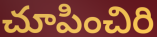
చూపించిరి